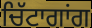
ਚਿੱਟਾਗਾਂਗ